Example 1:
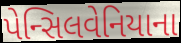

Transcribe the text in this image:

પેન્સિલવેનિયાના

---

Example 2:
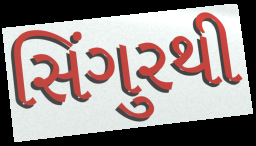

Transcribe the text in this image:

સિંગુરથી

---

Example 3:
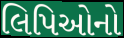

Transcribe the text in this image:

લિપિઓનો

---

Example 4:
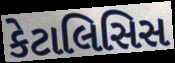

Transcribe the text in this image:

કેટાલિસિસ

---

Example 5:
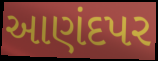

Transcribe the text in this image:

આણંદપર